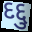
દદ્દુ